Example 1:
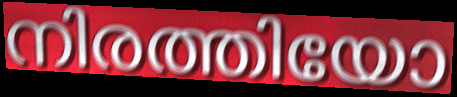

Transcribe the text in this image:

നിരത്തിയോ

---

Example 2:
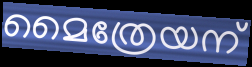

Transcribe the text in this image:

മൈത്രേയന്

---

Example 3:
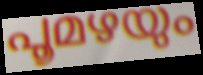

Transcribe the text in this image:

പൂമഴയും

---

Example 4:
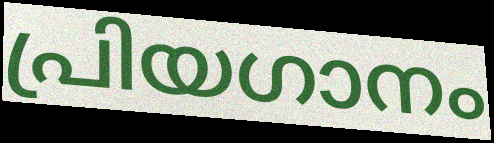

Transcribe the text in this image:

പ്രിയഗാനം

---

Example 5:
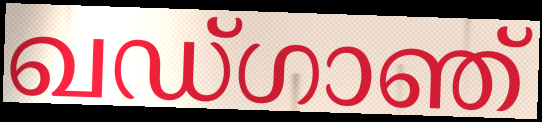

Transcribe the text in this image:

ഖഡ്ഗാഞ്